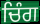
ਚਿੰਗ